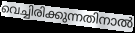
വെച്ചിരിക്കുന്നതിനാൽ